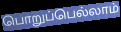
பொறுப்பெல்லாம்